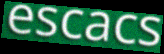
escacs